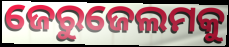
ଜେରୁଜେଲମକୁ